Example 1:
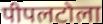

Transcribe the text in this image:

पीपलटोला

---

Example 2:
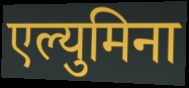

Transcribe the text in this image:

एल्युमिना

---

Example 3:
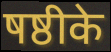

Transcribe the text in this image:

षष्ठीके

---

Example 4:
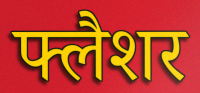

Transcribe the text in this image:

फ्लैशर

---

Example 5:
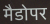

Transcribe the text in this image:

मैडोपर